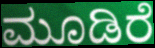
ಮೂಡಿರೆ